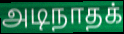
அடிநாதக்